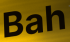
Bah